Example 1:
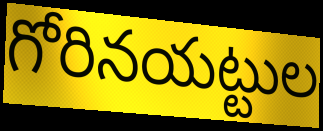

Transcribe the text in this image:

గోరినయట్టుల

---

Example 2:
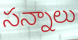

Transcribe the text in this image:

సన్నాలు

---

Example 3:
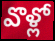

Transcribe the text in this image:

వొళ్లో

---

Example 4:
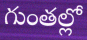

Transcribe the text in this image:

గుంతల్లో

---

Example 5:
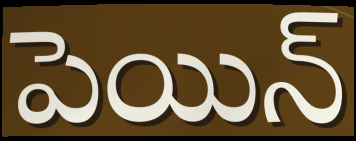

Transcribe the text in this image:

పెయిన్